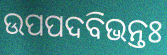
ଉପପଦବିଭନ୍ତଃ